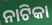
ନାଟିକା